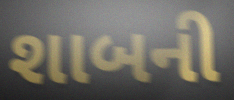
શાબની